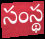
సంస్థ